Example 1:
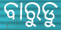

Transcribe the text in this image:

ବାରୁଡୁ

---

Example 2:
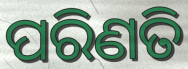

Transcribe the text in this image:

ପରିଣତି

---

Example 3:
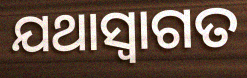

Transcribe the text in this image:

ଯଥାସ୍ଵାଗତ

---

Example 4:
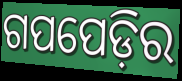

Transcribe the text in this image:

ଗପପେଡ଼ିର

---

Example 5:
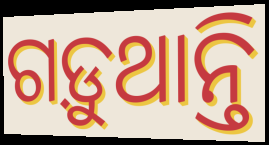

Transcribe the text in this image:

ଗଡ଼ୁଥାନ୍ତି